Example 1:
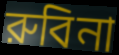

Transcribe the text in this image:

রুবিনা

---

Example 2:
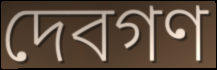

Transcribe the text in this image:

দেবগণ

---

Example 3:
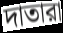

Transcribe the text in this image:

দাতারা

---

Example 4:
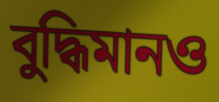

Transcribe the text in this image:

বুদ্ধিমানও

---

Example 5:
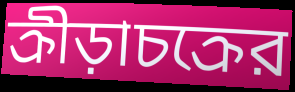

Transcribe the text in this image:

ক্রীড়াচক্রের